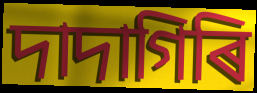
দাদাগিৰি